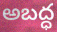
అబద్ధ